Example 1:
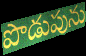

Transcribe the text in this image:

పొడుపును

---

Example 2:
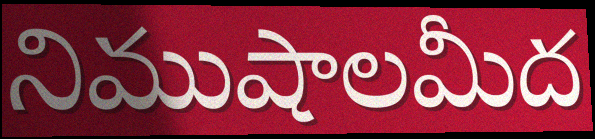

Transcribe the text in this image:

నిముషాలమీద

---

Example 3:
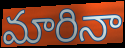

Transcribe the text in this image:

మారినా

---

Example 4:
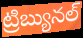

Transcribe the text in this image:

ట్రిబ్యునల్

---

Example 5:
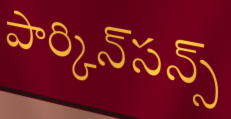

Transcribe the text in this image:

పార్కిన్‌సన్స్